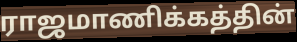
ராஜமாணிக்கத்தின்